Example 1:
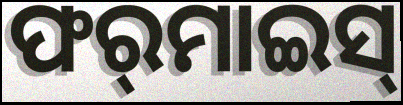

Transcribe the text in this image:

ଫର୍‌ମାଇସ୍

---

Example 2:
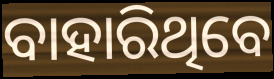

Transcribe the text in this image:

ବାହାରିଥିବେ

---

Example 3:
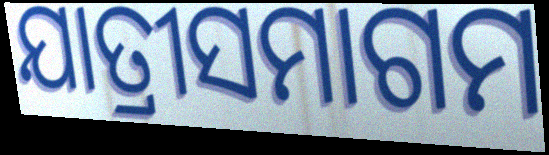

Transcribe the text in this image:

ଯାତ୍ରୀସମାଗମ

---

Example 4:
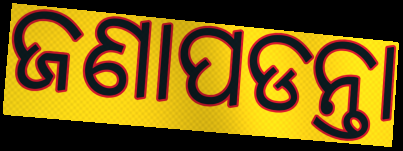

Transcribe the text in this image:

ଜଣାପଡନ୍ତା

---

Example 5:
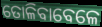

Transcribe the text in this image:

ତୋଳିବାବେଳେ